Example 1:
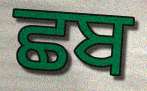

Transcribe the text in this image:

ਛਬ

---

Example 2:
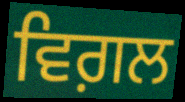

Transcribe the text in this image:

ਵਿਗ਼ਲ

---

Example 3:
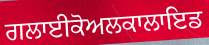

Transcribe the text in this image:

ਗਲਾਈਕੋਅਲਕਾਲਾਇਡ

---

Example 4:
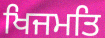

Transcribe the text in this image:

ਖਿਜਮਤਿ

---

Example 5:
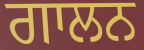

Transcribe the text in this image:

ਗਾਲਨ